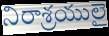
నిరాశ్రయులై